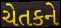
ચેતકને